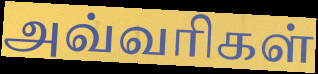
அவ்வரிகள்